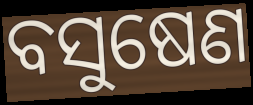
ବସୁଷେଣ